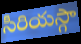
సీరియస్గా